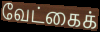
வேட்கைக்